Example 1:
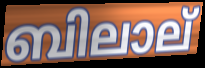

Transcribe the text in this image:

ബിലാല്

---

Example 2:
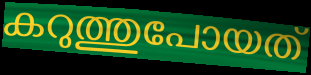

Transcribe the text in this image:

കറുത്തുപോയത്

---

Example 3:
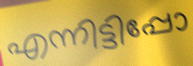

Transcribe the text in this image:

എന്നിട്ടിപ്പോ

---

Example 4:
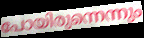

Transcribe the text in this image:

പോയിരുന്നെന്നും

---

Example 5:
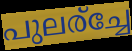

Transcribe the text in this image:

പുലര്ച്ചേ